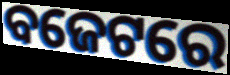
ବଜେଟରେ